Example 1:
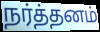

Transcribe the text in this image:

நர்த்தனம்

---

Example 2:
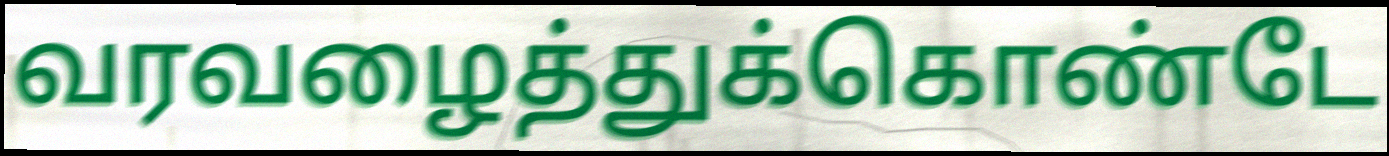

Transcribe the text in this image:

வரவழைத்துக்கொண்டே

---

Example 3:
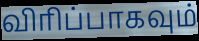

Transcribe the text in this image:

விரிப்பாகவும்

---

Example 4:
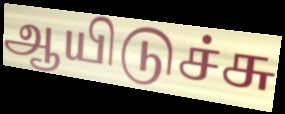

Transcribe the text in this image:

ஆயிடுச்சு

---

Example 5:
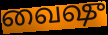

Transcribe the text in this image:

வைஷு